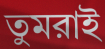
তুমরাই